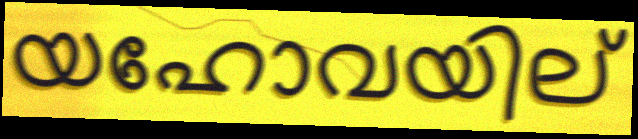
യഹോവയില്